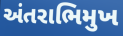
અંતરાભિમુખ